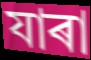
যাৰা